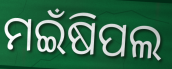
ମଇଁଷିପଲ